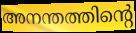
അനന്തത്തിന്റെ